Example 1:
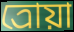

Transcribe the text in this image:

ত্রোয়া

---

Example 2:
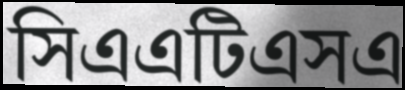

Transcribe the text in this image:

সিএএটিএসএ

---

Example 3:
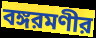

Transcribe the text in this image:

বঙ্গরমণীর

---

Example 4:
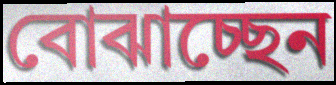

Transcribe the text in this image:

বোঝাচ্ছেন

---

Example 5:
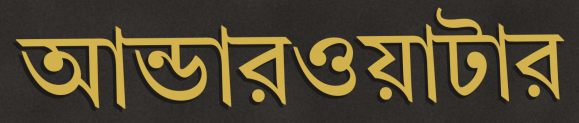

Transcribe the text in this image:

আন্ডারওয়াটার